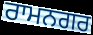
ਰਾਮਨਗਰ